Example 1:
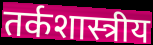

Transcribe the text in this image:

तर्कशास्त्रीय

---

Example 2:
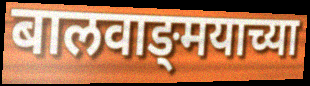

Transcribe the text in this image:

बालवाङ्‌मयाच्या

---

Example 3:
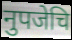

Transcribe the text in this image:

नुपजेचि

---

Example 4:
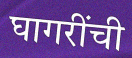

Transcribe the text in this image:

घागरींची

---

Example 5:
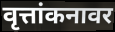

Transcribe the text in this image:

वृत्तांकनावर